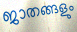
ജാതങ്ങളും